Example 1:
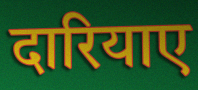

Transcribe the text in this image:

दारियाए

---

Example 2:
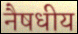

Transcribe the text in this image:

नैषधीय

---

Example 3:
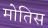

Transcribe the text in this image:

मोतिस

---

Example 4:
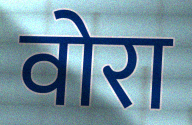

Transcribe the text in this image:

वोरा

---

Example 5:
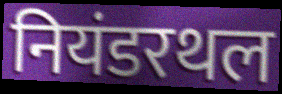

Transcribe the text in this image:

नियंडरथल